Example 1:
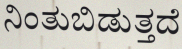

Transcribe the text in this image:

ನಿಂತುಬಿಡುತ್ತದೆ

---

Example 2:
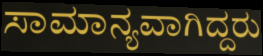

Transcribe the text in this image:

ಸಾಮಾನ್ಯವಾಗಿದ್ದರು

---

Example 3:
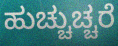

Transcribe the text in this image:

ಹುಚ್ಚುಚ್ಚರೆ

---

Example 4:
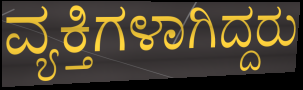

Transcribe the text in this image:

ವ್ಯಕ್ತಿಗಳಾಗಿದ್ದರು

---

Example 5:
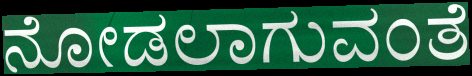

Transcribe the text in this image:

ನೋಡಲಾಗುವಂತೆ